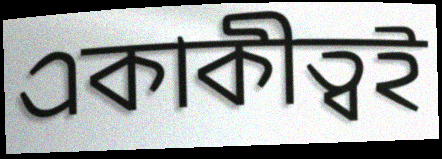
একাকীত্বই